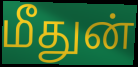
மீதுன்